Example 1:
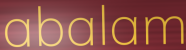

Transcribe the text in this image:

abalam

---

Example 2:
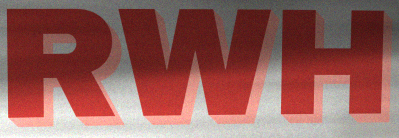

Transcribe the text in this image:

RWH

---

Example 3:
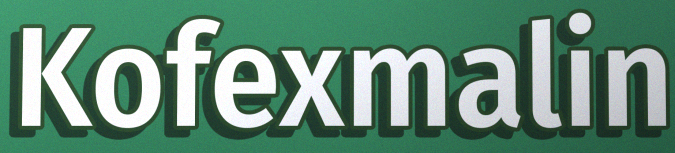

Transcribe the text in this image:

Kofexmalin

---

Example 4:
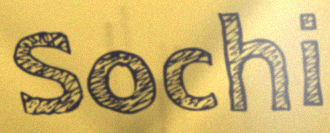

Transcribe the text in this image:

Sochi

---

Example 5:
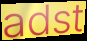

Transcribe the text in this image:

adst